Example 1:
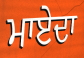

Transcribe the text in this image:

ਮਾਏਦਾ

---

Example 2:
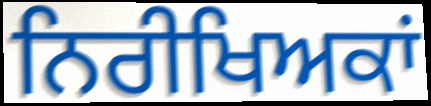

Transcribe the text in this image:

ਨਿਰੀਖਿਅਕਾਂ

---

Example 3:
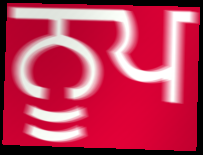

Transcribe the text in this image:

ਨੂਪ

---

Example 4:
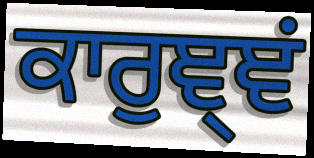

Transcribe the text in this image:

ਕਾਰੁਞ੍ਞਂ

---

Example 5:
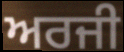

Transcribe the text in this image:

ਅਰਜੀ